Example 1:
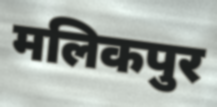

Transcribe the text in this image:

मलिकपुर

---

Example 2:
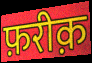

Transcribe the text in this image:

फ़रीक़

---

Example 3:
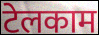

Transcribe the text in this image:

टेलकाम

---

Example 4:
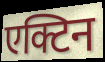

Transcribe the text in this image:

एक्टिन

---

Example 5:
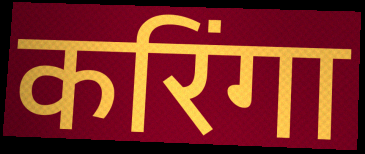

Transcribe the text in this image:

करिंगा